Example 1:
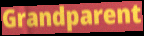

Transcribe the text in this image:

Grandparent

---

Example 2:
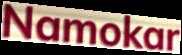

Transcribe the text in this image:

Namokar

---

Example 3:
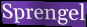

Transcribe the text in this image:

Sprengel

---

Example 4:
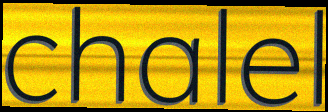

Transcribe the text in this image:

chalel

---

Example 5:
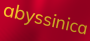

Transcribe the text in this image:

abyssinica